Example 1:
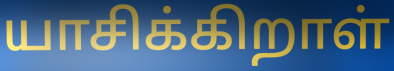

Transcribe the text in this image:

யாசிக்கிறாள்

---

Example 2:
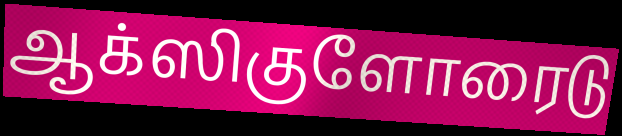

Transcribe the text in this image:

ஆக்ஸிகுளோரைடு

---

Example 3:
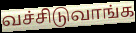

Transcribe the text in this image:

வச்சிடுவாங்க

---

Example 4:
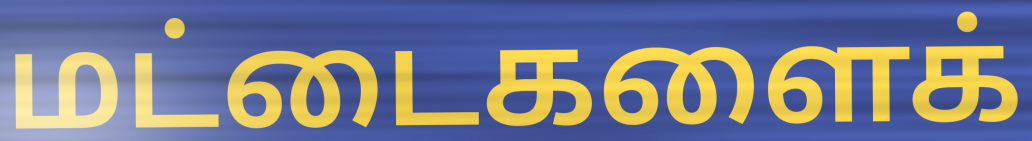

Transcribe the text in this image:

மட்டைகளைக்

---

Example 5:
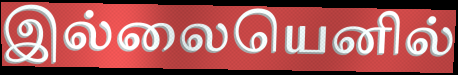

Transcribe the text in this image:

இல்லையெனில்